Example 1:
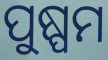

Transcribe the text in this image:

ପୁଷ୍ପମ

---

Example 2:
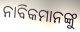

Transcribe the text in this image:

ନାବିକମାନଙ୍କୁ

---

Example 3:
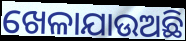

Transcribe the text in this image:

ଖେଳାଯାଉଅଛି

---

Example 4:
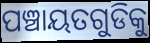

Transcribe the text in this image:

ପଞ୍ଚାୟତଗୁଡିକୁ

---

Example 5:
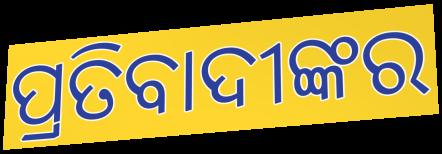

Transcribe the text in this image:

ପ୍ରତିବାଦୀଙ୍କର